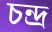
চন্দ্ৰ